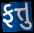
ફત્તુ